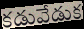
కడువేడుక